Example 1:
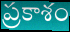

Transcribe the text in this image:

ప్రకాశం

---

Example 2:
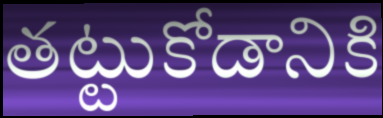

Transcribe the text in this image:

తట్టుకోడానికి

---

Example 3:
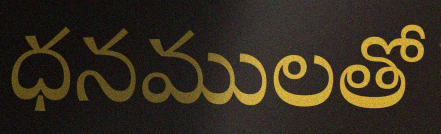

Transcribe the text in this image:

ధనములతో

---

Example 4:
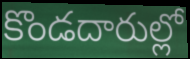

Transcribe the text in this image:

కొండదారుల్లో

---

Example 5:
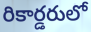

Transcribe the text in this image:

రికార్డరులో